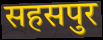
सहसपुर